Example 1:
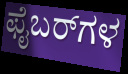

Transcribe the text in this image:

ಫೈಬರ್‌ಗಳ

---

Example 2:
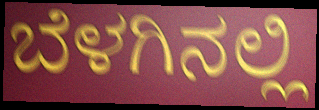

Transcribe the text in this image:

ಬೆಳಗಿನಲ್ಲಿ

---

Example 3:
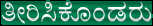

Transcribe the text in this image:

ತೀರಿಸಿಕೊಂಡರು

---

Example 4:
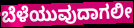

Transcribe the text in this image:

ಬೆಳೆಯುವುದಾಗಲೀ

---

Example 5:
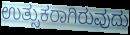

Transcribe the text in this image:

ಉತ್ಸುಕರಾಗಿರುವುದು